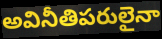
అవినీతిపరులైనా